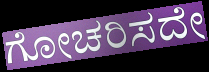
ಗೋಚರಿಸದೇ